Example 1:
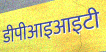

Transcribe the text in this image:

डीपीआइआइटी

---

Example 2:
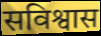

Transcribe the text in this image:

सविश्वास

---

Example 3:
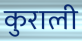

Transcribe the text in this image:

कुराली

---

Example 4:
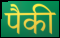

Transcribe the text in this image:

पैकी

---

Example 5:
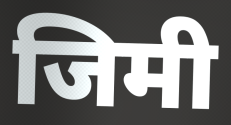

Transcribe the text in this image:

जिमी